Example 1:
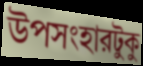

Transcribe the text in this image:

উপসংহারটুকু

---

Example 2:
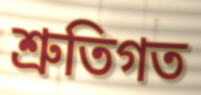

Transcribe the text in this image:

শ্রুতিগত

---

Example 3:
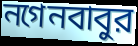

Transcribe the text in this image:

নগেনবাবুর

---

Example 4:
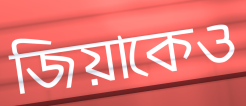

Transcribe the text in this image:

জিয়াকেও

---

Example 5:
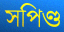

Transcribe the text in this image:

সপিণ্ড